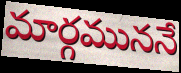
మార్గముననే